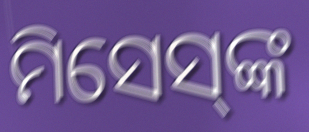
ମିସେସ୍‌ଙ୍କ